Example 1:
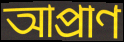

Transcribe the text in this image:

আপ্ৰাণ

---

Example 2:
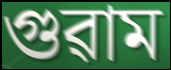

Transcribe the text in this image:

গুৱাম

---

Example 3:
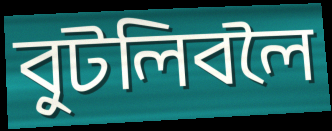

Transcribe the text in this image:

বুটলিবলৈ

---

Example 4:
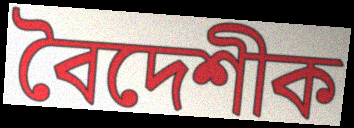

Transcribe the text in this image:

বৈদেশীক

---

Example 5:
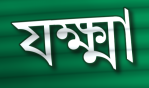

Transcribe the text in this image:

যক্ষ্মা